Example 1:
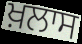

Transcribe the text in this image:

ਖ਼ਲਾਸ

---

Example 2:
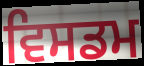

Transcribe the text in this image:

ਵਿਸਡਮ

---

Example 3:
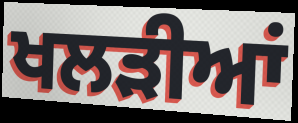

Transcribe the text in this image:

ਖਲੜੀਆਂ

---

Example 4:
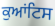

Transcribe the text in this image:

ਕੁਆਂਟਿਸ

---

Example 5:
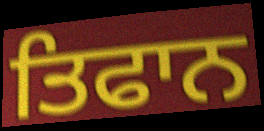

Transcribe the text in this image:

ਤਿਫਾਨ